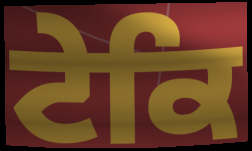
ਟੇਕਿ